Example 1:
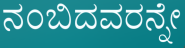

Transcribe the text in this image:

ನಂಬಿದವರನ್ನೇ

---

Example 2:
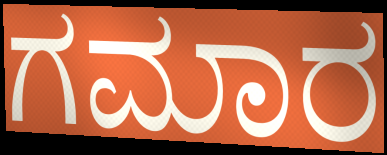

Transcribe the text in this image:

ಗಮಾರ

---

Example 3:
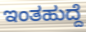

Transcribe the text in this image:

ಇಂತಹುದ್ದೆ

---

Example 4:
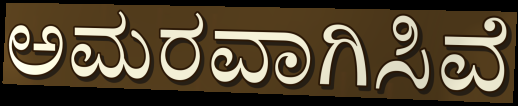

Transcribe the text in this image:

ಅಮರವಾಗಿಸಿವೆ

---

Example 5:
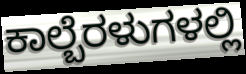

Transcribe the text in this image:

ಕಾಲ್ಬೆರಳುಗಳಲ್ಲಿ